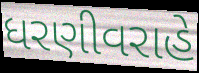
ધરણીવરાહે